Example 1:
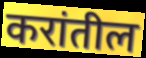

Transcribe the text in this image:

करांतील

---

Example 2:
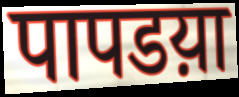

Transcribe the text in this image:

पापडय़ा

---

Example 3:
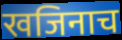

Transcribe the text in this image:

खजिनाच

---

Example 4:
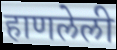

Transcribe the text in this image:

हाणलेली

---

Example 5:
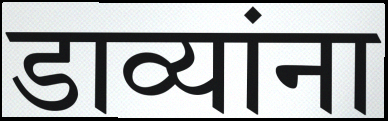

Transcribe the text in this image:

डाव्यांना